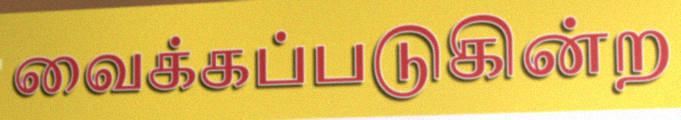
வைக்கப்படுகின்ற